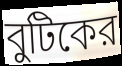
বুটিকের